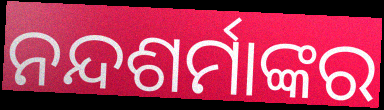
ନନ୍ଦଶର୍ମାଙ୍କର